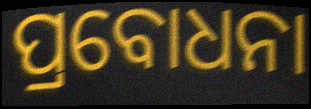
ପ୍ରବୋଧନା